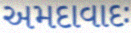
અમદાવાદઃ